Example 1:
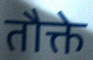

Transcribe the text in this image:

तौक्ते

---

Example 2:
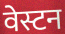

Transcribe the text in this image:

वेस्टन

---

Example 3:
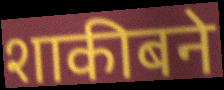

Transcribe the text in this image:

शाकीबने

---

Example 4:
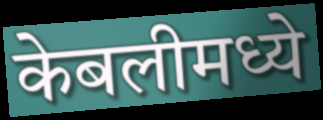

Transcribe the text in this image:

केबलीमध्ये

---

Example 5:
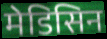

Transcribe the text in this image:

मेडिसिन